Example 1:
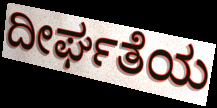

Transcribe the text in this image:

ದೀರ್ಘತೆಯ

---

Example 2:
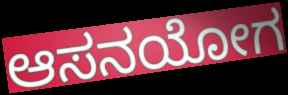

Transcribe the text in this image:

ಆಸನಯೋಗ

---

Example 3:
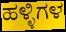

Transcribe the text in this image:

ಹಳ್ಳಿಗಳ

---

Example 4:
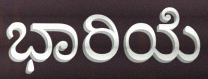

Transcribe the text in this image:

ಭಾರಿಯೆ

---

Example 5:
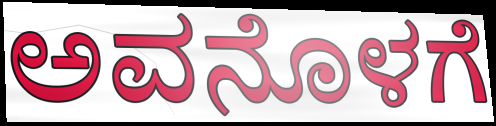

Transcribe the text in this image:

ಅವನೊಳಗೆ